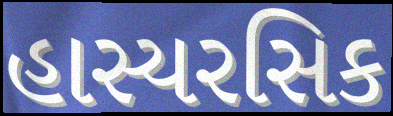
હાસ્યરસિક